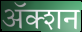
ॲक्शन